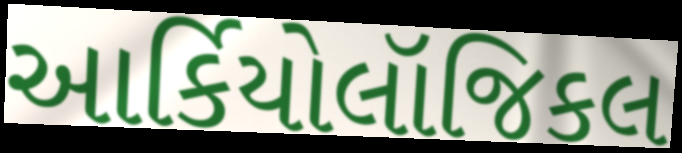
આર્કિયોલૉજિકલ